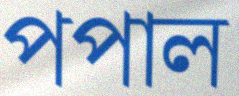
পপাল